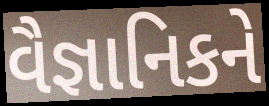
વૈજ્ઞાનિકને